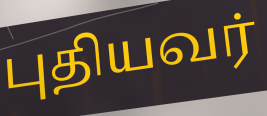
புதியவர்